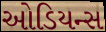
ઓડિયન્સ